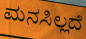
ಮನಸಿಲ್ಲದೆ